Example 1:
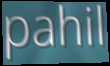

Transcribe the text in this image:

pahil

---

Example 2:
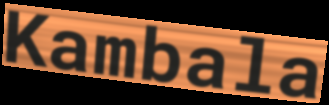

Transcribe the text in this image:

Kambala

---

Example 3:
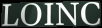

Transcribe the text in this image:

LOINC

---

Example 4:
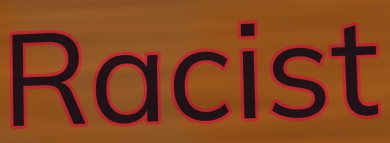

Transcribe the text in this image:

Racist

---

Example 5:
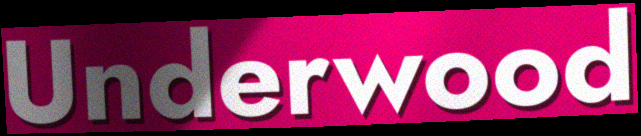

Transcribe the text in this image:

Underwood